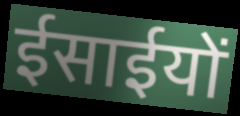
ईसाईयों